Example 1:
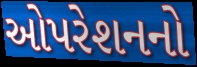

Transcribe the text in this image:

ઓપરેશનનો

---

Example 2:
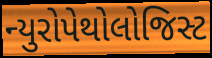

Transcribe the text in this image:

ન્યુરોપેથોલોજિસ્ટ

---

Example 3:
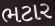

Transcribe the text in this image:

ભટાર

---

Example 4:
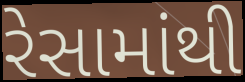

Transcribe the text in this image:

રેસામાંથી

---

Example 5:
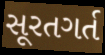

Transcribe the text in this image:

સૂરતગર્ત